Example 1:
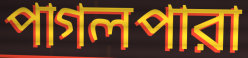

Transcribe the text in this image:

পাগলপারা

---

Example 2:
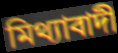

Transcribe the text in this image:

মিথ্যাবাদী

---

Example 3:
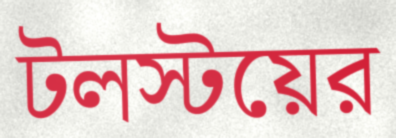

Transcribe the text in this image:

টলস্টয়ের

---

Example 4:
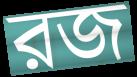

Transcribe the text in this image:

রজ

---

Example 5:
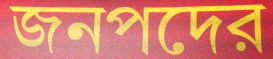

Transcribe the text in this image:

জনপদের